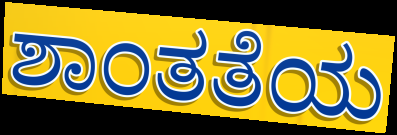
ಶಾಂತತೆಯ